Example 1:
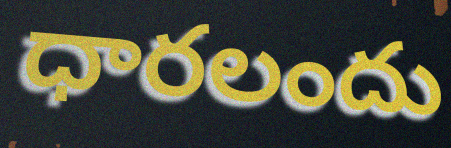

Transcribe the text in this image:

ధారలందు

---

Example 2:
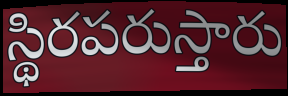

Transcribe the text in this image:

స్థిరపరుస్తారు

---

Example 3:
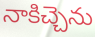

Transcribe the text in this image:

నాకిచ్చెను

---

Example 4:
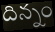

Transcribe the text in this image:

దిన్నం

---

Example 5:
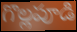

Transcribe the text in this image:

గొల్లపూడి